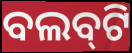
ବଲବ୍‌ଟି